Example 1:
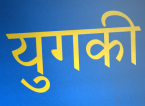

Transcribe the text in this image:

युगकी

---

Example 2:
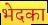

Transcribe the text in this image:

भेदका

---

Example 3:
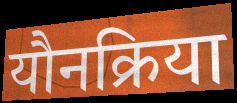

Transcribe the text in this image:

यौनक्रिया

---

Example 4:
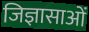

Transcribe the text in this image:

जिज्ञासाओं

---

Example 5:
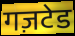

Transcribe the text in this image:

गज़टेड